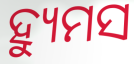
ହ୍ୟୁମସ